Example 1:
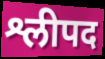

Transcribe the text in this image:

श्लीपद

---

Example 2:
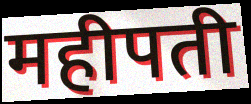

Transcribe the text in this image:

महीपती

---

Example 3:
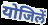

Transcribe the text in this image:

योजिलें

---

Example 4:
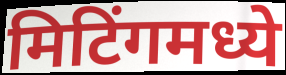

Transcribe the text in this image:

मिटिंगमध्ये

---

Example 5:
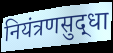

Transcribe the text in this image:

नियंत्रणसुद्धा